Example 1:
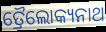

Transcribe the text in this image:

ତ୍ରୈଲୋକ୍ୟନାଥ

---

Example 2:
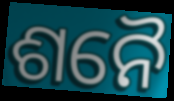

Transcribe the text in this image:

ଶନୈ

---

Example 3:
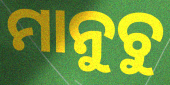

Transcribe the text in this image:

ମାନୁଚୁ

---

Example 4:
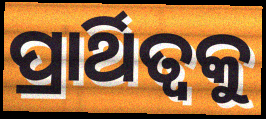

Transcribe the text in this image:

ପ୍ରାର୍ଥିତ୍ୱକୁ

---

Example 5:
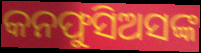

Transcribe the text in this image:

କନଫୁସିଅସଙ୍କ